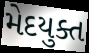
મેદયુક્ત